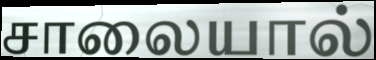
சாலையால்